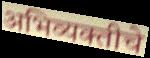
अभिव्यक्तीचे